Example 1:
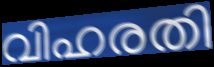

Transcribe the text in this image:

വിഹരതി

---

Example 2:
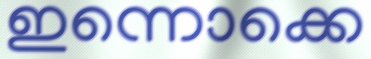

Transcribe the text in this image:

ഇന്നൊക്കെ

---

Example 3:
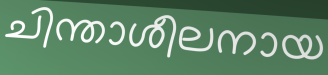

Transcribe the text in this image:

ചിന്താശീലനായ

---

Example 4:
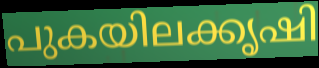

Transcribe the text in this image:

പുകയിലക്കൃഷി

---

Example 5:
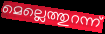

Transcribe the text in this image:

മെല്ലെത്തുറന്ന്